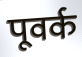
पूवर्क